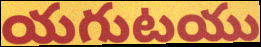
యగుటయు